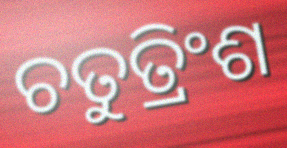
ଚତୁତ୍ରିଂଶ